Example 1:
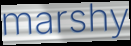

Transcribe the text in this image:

marshy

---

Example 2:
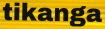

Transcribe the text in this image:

tikanga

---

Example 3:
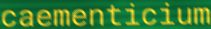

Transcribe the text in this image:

caementicium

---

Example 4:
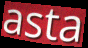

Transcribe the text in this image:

asta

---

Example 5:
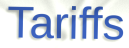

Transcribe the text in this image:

Tariffs